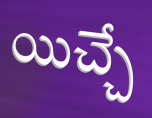
యిచ్చే